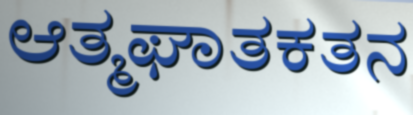
ಆತ್ಮಘಾತಕತನ